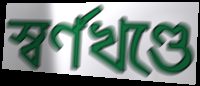
স্বর্ণখণ্ডে